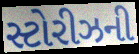
સ્ટોરીઝની